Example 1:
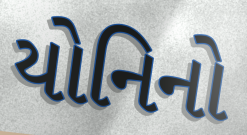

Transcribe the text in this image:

યોનિનો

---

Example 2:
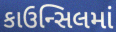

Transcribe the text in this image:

કાઉન્સિલમાં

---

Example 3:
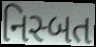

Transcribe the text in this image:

નિસ્બત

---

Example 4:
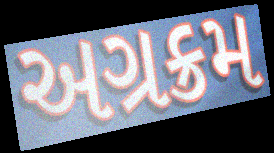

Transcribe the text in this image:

અગ્રક્રમ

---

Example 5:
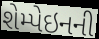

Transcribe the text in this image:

શેમ્પેઇનની